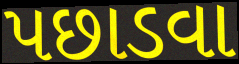
પછાડવા